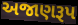
અજાણરૂપ